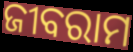
ଜୀବରାମ